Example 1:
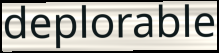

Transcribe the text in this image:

deplorable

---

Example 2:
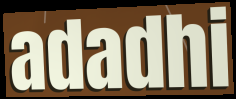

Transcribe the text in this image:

adadhi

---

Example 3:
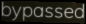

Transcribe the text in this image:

bypassed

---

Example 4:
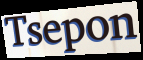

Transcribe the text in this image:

Tsepon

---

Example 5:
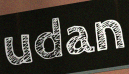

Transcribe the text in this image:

udan